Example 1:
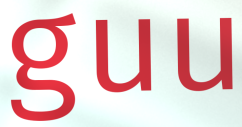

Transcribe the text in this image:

guu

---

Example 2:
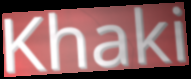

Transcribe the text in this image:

Khaki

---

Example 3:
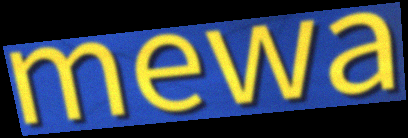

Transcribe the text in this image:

mewa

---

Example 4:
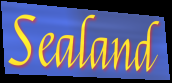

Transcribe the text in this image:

Sealand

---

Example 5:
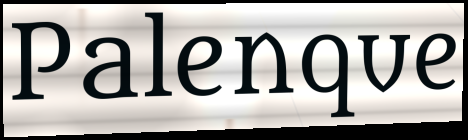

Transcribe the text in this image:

Palenque